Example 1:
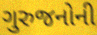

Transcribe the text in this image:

ગુરુજનોની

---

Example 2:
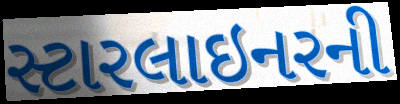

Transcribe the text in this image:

સ્ટારલાઇનરની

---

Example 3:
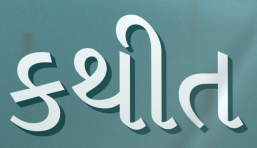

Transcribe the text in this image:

કથીત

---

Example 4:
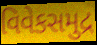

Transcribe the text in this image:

વિવેકસમુદ્ર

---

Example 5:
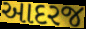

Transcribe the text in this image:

આદરજ